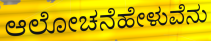
ಆಲೋಚನೆಹೇಳುವೆನು